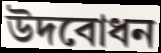
উদবোধন